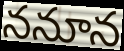
ననూన